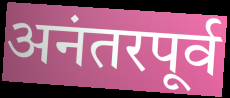
अनंतरपूर्व